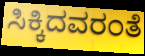
ಸಿಕ್ಕಿದವರಂತೆ